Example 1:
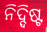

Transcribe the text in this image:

ନିଦ୍ଦିଷ୍ଟ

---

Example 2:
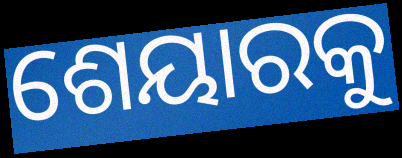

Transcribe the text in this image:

ଶେୟାରକୁ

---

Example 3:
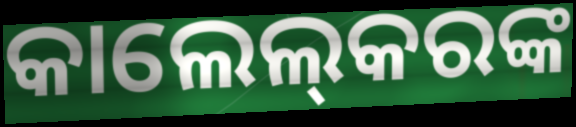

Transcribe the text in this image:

କାଲେଲ୍‌କରଙ୍କ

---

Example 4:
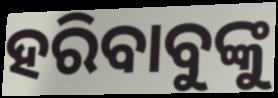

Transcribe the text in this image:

ହରିବାବୁଙ୍କୁ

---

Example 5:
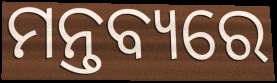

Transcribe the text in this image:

ମନ୍ତବ୍ୟରେ